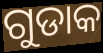
ଗୁଡାକ